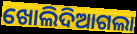
ଖୋଲିଦିଆଗଲା